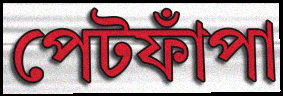
পেটফাঁপা